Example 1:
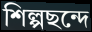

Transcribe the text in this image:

শিল্পছন্দে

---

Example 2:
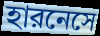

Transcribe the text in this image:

হারনেসে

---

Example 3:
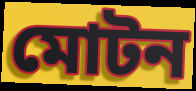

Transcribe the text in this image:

মোটন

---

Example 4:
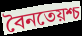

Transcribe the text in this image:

বৈনতেয়শ্চ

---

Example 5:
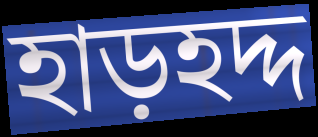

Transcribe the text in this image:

হাড়হদ্দ